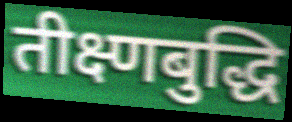
तीक्ष्णबुद्धि